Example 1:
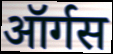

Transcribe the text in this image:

ऑर्गस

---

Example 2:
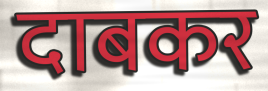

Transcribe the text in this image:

दाबकर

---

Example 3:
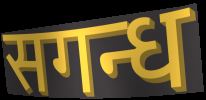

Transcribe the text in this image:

सगन्ध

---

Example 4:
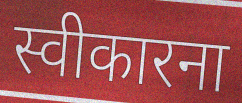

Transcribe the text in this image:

स्वीकारना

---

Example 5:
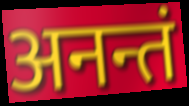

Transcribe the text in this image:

अनन्तं